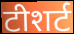
टीशर्ट